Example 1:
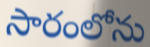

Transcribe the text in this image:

సారంలోను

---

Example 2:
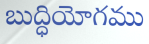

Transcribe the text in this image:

బుద్ధియోగము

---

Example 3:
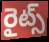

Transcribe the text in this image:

రైట్స్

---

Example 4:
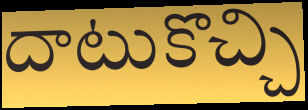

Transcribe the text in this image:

దాటుకొచ్చి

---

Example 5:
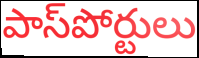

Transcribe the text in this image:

పాస్‌పోర్టులు